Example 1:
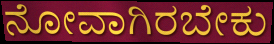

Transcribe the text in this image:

ನೋವಾಗಿರಬೇಕು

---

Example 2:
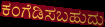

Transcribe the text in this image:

ಕಂಗೆಡಿಸಬಹುದು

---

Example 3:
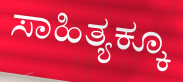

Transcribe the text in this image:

ಸಾಹಿತ್ಯಕ್ಕೂ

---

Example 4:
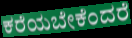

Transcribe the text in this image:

ಕರೆಯಬೇಕೆಂದರೆ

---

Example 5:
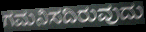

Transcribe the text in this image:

ಗಮನಿಸದಿರುವುದು